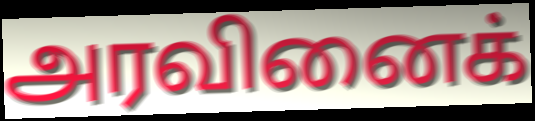
அரவினைக்